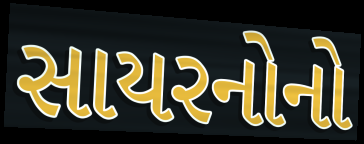
સાયરનોનો